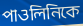
পাওলিনিকে